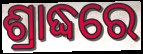
ଶ୍ରାଦ୍ଧରେ